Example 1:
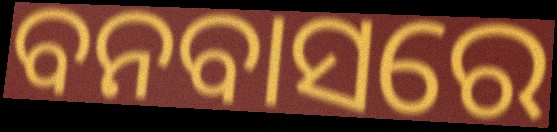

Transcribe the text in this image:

ବନବାସରେ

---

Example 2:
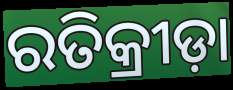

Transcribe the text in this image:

ରତିକ୍ରୀଡ଼ା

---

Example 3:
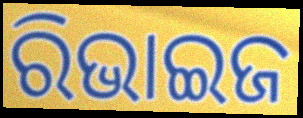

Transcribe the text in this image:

ରିଭାଇଜ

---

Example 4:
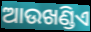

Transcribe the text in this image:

ଆଉଖଣ୍ଡିଏ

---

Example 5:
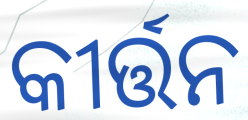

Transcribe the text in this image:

କୀର୍ତ୍ତନ